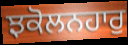
ਝਕੋਲਨਹਾਰੁ